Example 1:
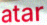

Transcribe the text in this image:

atar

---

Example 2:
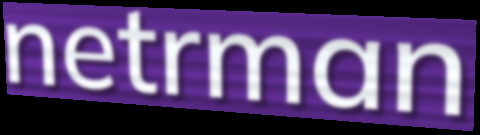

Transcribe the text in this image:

netrman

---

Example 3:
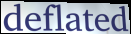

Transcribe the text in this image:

deflated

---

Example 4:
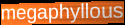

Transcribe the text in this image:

megaphyllous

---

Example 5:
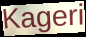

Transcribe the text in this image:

Kageri